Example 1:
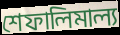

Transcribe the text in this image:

শেফালিমাল্য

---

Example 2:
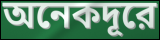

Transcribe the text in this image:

অনেকদূরে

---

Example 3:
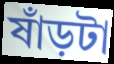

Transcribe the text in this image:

ষাঁড়টা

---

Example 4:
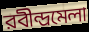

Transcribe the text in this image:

রবীন্দ্রমেলা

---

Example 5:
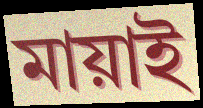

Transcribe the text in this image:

মায়াই